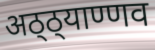
अठ्ठ्याण्णव